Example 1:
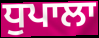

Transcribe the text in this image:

ਧੁਪਾਲਾ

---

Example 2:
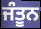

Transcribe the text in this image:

ਜੰਤੂਨ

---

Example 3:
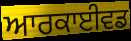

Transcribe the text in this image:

ਆਰਕਾਈਵਡ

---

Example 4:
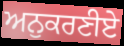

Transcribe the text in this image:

ਅਨੁਕਰਣੀਏ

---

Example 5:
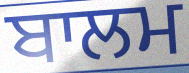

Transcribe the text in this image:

ਬਾਲਮ